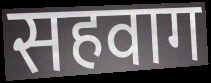
सहवाग